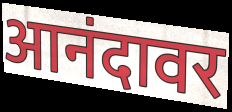
आनंदावर